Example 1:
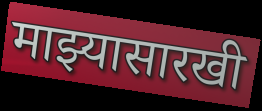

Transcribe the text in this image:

माझ्यासारखी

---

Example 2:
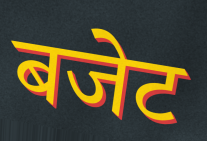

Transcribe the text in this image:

बजेट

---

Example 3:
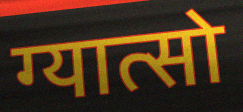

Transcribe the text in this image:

ग्यात्सो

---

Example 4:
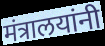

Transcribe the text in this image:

मंत्रालयांनी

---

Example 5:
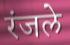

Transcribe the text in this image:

रंजले